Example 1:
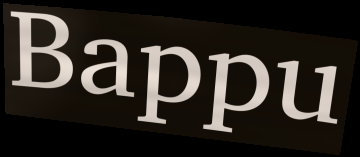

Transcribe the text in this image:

Bappu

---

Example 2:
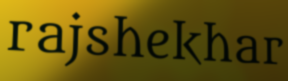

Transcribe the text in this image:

rajshekhar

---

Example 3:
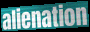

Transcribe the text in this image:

alienation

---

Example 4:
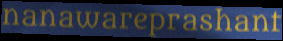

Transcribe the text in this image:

nanawareprashant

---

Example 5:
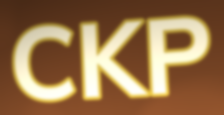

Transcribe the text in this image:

CKP